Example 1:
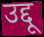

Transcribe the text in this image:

उद्दू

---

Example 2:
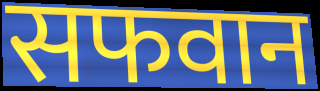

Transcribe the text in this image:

सफवान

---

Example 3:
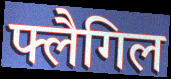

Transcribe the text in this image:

फ्लैगिल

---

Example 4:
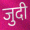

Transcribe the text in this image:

जुदी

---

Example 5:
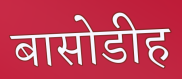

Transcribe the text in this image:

बासोडीह